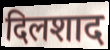
दिलशाद